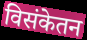
विसंकेतन